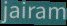
jairam